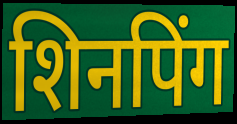
शिनपिंग